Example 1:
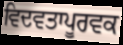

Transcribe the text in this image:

ਵਿਦਵਤਾਪੂਰਵਕ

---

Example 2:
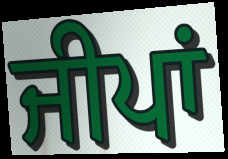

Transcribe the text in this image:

ਜੀਪਾਂ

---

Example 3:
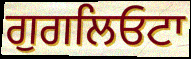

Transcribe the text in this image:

ਗੁਗਲਿਓਟਾ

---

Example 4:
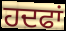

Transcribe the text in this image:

ਹਦਫਾਂ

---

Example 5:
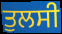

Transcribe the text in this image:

ਤੁਲਸੀ